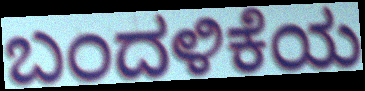
ಬಂದಳಿಕೆಯ